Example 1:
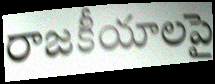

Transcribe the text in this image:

రాజకీయాలపై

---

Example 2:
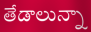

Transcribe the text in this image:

తేడాలున్నా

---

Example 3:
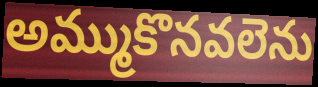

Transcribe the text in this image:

అమ్ముకొనవలెను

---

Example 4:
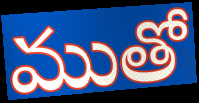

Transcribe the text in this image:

ముతో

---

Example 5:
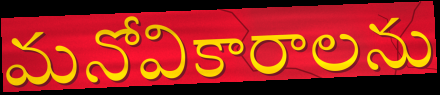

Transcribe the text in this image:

మనోవికారాలను